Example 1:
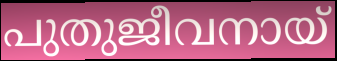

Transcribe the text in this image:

പുതുജീവനായ്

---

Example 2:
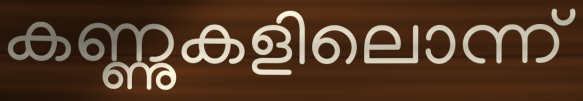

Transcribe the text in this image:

കണ്ണുകളിലൊന്ന്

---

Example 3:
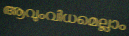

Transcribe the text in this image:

ആവുംവിധമെല്ലാം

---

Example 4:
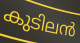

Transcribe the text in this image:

കുടിലൻ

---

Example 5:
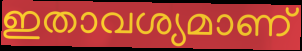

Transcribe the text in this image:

ഇതാവശ്യമാണ്